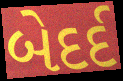
બેદર્દ